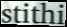
stithi